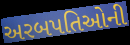
અરબપતિઓની